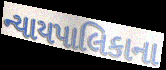
ન્યાયપાલિકાના